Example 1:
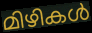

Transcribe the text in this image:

മിഴികൾ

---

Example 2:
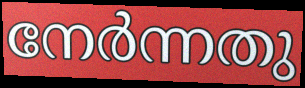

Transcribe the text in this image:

നേർന്നതു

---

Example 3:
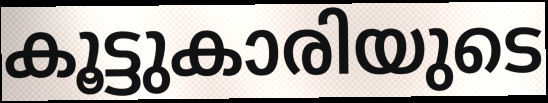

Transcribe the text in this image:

കൂട്ടുകാരിയുടെ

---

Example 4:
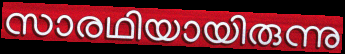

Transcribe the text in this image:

സാരഥിയായിരുന്നു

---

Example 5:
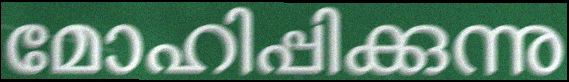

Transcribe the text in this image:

മോഹിപ്പിക്കുന്നു